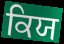
ਕਿਯ